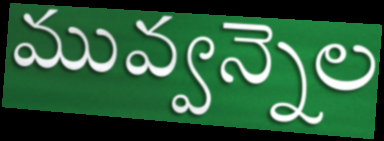
మువ్వన్నెల